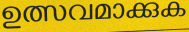
ഉത്സവമാക്കുക